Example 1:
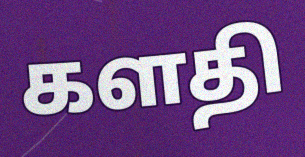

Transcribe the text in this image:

களதி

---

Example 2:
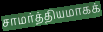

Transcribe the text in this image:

சாமர்த்தியமாகக்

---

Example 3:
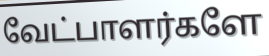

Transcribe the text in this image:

வேட்பாளர்களே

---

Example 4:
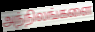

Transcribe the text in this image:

அந்நிலங்களை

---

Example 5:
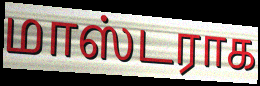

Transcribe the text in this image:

மாஸ்டராக